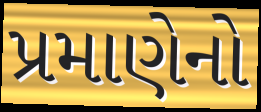
પ્રમાણેનો